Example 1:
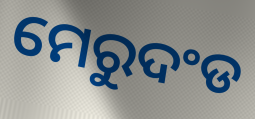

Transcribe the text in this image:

ମେରୁଦଂଡ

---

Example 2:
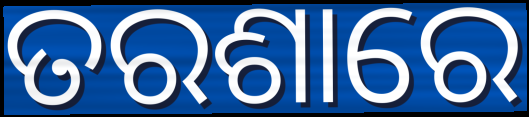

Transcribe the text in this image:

ତରଶାରେ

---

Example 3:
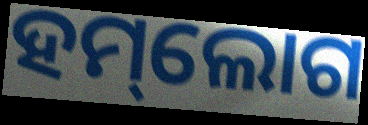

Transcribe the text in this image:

ହମ୍‌ଲୋଗ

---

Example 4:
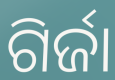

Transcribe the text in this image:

ଗିର୍ଜା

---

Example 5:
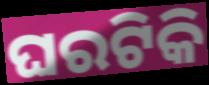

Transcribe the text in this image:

ଘରଟିକି